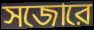
সজোরে